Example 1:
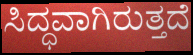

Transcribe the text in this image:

ಸಿದ್ಧವಾಗಿರುತ್ತದೆ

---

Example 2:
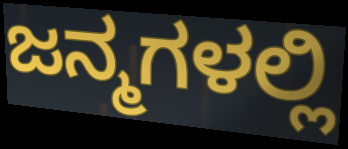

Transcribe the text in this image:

ಜನ್ಮಗಳಲ್ಲಿ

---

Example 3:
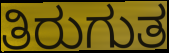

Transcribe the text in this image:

ತಿರುಗುತ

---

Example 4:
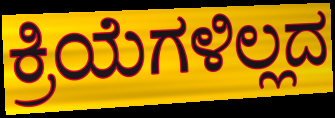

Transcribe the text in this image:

ಕ್ರಿಯೆಗಳಿಲ್ಲದ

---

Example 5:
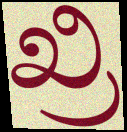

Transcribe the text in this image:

ಖ್ರಿ